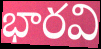
భారవి